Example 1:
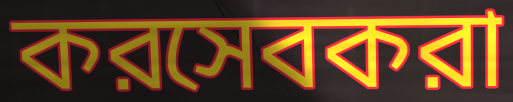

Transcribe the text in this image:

করসেবকরা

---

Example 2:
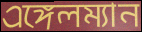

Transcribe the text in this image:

এঙ্গেলম্যান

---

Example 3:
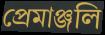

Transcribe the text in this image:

প্রেমাঞ্জলি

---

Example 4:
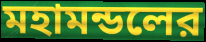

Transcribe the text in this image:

মহামন্ডলের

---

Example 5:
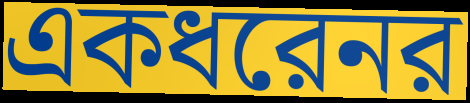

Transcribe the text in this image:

একধরেনর